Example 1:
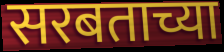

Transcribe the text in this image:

सरबताच्या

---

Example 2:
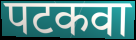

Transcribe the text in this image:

पटकवा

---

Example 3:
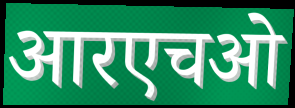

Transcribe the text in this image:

आरएचओ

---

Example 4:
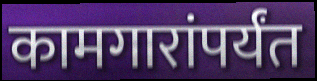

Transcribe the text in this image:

कामगारांपर्यंत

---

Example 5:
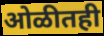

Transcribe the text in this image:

ओळीतही